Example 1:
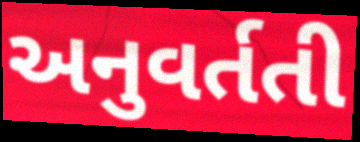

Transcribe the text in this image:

અનુવર્તતી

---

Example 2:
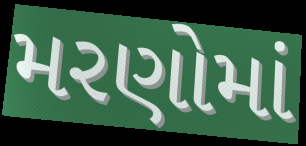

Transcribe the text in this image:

મરણોમાં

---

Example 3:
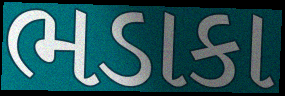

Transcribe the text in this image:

ભડાકા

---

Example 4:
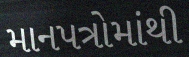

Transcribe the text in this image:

માનપત્રોમાંથી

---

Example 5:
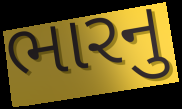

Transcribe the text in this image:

ભારનુ